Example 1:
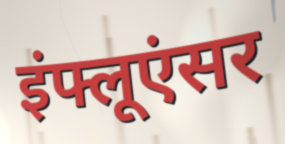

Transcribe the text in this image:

इंफ्लूएंसर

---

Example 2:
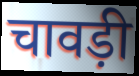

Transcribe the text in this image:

चावड़ी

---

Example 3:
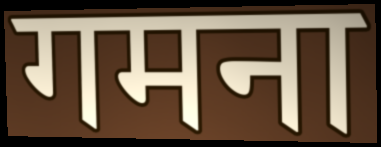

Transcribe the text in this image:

गमना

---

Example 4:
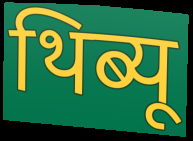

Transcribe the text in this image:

थिब्यू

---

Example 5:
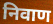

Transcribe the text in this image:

निवाण